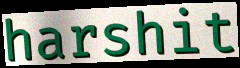
harshit